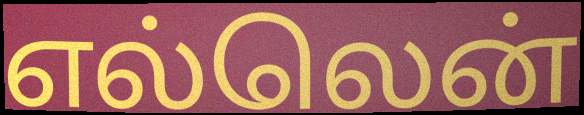
எல்லென்